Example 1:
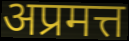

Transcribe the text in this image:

अप्रमत्त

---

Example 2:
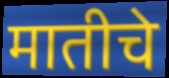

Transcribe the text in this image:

मातीचे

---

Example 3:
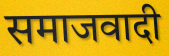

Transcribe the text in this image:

समाजवादी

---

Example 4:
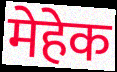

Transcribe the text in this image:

मेहेक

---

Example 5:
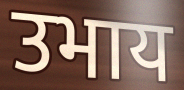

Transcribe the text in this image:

उभाय